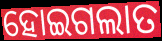
ହୋଇଗଲାତ